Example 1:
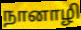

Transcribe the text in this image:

நானாழி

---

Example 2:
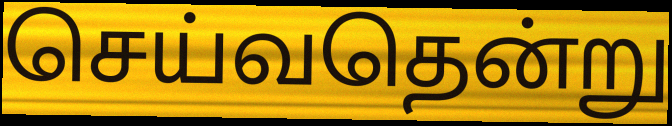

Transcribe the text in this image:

செய்வதென்று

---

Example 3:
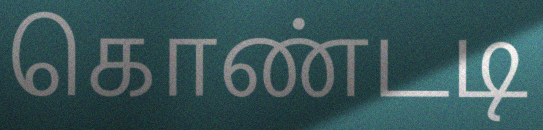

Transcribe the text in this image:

கொண்டடி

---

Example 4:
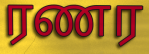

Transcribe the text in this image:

ரணர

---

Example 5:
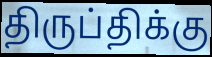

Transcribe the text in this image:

திருப்திக்கு